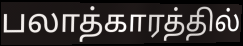
பலாத்காரத்தில்